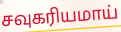
சவுகரியமாய்